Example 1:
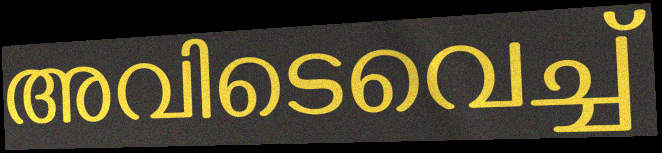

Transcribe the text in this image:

അവിടെവെച്ച്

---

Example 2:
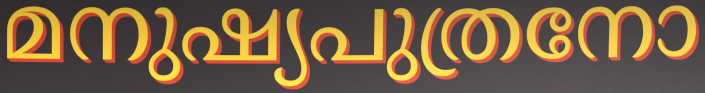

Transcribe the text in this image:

മനുഷ്യപുത്രനോ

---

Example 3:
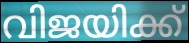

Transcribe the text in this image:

വിജയിക്ക്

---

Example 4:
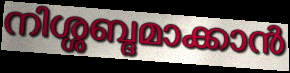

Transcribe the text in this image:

നിശ്ശബ്ദമാക്കാൻ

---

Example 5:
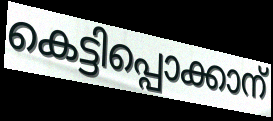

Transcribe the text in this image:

കെട്ടിപ്പൊക്കാന്